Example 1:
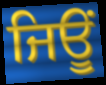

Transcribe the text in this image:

ਜਿਊਂ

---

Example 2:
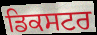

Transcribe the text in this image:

ਡਿਕਸਟਰ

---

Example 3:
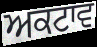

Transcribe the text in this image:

ਅਕਟਾਵ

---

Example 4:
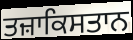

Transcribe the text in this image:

ਤਜ਼ਾਕਿਸਤਾਨ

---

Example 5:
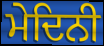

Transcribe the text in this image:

ਮੇਦਿਨੀ